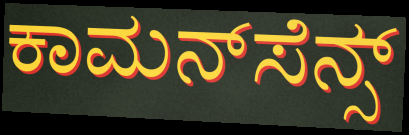
ಕಾಮನ್‌ಸೆನ್ಸ್